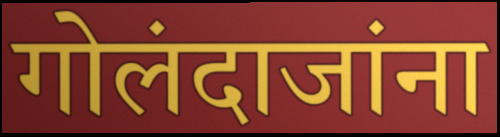
गोलंदाजांना